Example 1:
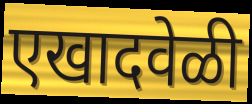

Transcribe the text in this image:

एखादवेळी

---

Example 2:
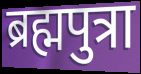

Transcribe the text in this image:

ब्रह्मपुत्रा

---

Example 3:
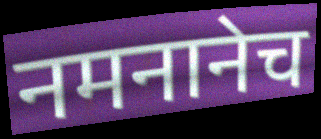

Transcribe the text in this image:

नमनानेच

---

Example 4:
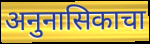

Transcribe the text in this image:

अनुनासिकाचा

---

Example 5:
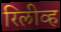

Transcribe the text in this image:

रिलीव्ह